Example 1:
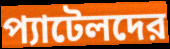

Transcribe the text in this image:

প্যাটেলদের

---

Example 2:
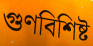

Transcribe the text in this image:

গুণবিশিষ্ট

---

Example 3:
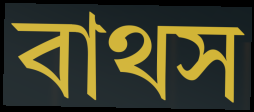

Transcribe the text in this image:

বাথস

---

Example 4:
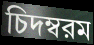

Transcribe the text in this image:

চিদম্বরম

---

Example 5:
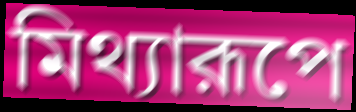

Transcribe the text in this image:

মিথ্যারূপে